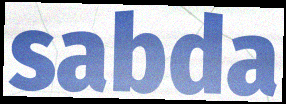
sabda